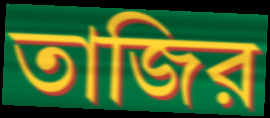
তাজির